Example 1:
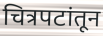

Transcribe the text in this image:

चित्रपटांतून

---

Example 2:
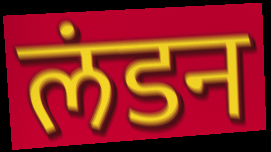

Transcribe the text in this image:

लंडन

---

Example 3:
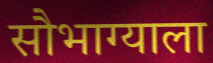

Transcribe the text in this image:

सौभाग्याला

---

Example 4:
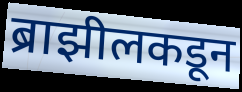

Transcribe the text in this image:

ब्राझीलकडून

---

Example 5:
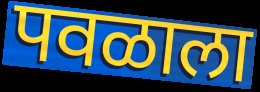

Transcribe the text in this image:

पवळाला